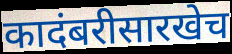
कादंबरीसारखेच